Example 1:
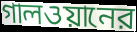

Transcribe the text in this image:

গালওয়ানের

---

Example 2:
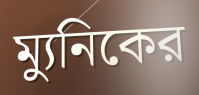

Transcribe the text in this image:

ম্যুনিকের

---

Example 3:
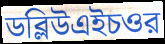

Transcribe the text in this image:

ডব্লিউএইচওর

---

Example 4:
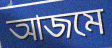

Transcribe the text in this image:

আজমে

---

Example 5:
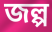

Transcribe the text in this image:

জল্প